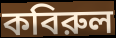
কবিরুল